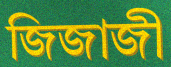
জিজাজী